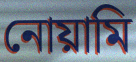
নোয়ামি